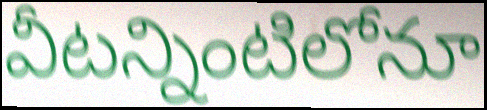
వీటన్నింటిలోనూ